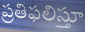
ప్రతిఫలిస్తూ